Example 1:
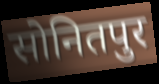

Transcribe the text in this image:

सोनितपुर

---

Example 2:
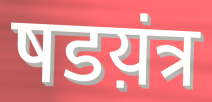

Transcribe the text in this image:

षडय़ंत्र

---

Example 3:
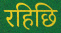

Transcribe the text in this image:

रहिछि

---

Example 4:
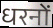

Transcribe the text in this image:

धरनों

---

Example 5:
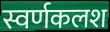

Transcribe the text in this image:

स्वर्णकलश